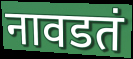
नावडतं